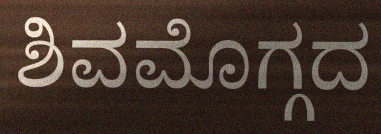
ಶಿವಮೊಗ್ಗದ